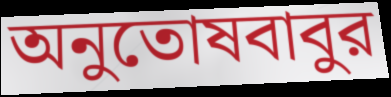
অনুতোষবাবুর